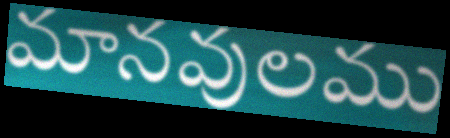
మానవులము